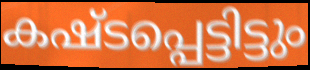
കഷ്ടപ്പെട്ടിട്ടും